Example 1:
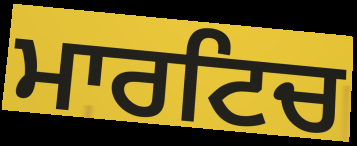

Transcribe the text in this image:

ਮਾਰਟਿਚ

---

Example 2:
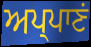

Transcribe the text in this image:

ਅਪ੍ਪਾਣਂ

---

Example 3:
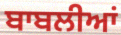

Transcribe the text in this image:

ਬਾਬਲੀਆਂ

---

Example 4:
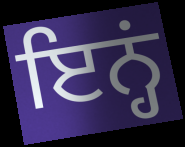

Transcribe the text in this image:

ਇਨ੍ਹਂ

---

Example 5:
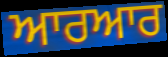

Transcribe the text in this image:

ਆਰਆਰ